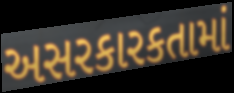
અસરકારકતામાં